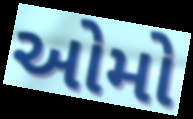
ઓમો